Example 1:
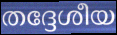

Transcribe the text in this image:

തദ്ദേശീയ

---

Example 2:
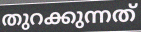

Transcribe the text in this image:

തുറക്കുന്നത്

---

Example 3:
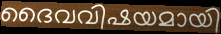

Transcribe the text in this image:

ദൈവവിഷയമായി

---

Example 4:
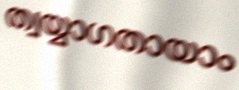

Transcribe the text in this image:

ത്വയ്യാഗതായാം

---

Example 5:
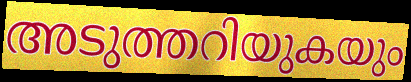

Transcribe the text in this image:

അടുത്തറിയുകയും